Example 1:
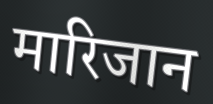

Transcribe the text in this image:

मारिजान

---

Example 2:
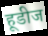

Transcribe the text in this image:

हूडीज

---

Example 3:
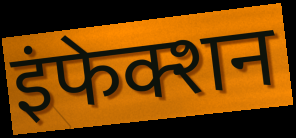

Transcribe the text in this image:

इंफेक्शन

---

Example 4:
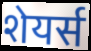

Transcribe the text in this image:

शेयर्स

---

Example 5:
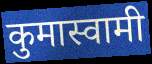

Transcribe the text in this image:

कुमास्वामी